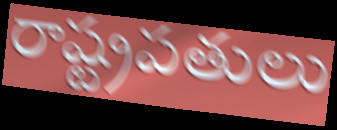
రాష్ట్రపతులు